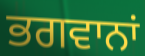
ਭਗਵਾਨਾਂ